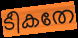
ടീകതേ